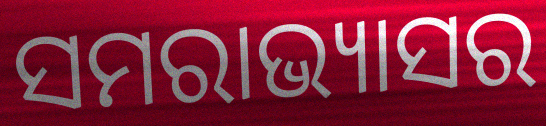
ସମରାଭ୍ୟାସର